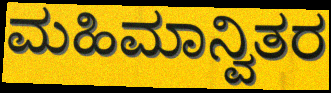
ಮಹಿಮಾನ್ವಿತರ